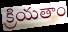
క్రియతాం